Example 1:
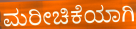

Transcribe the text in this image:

ಮರೀಚಿಕೆಯಾಗಿ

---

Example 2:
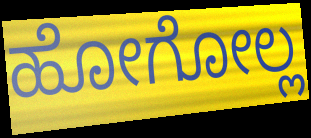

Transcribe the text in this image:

ಹೋಗೋಲ್ಲ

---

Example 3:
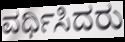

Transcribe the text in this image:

ವರ್ಧಿಸಿದರು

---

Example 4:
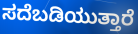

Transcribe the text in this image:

ಸದೆಬಡಿಯುತ್ತಾರೆ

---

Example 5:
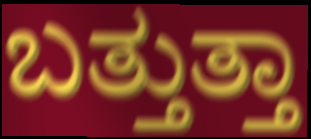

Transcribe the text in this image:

ಬತ್ತುತ್ತಾ